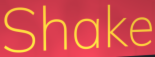
Shake